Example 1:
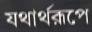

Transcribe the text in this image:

যথার্থরূপে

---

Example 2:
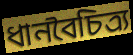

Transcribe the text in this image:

ধানবৈচিত্র্য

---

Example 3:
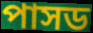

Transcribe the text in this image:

পাসড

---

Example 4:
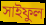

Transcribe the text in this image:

সাইফুল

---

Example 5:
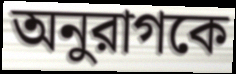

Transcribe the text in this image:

অনুরাগকে